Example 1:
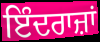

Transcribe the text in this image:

ਇੰਦਰਾਜ਼ਾਂ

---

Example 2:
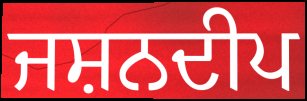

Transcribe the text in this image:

ਜਸ਼ਨਦੀਪ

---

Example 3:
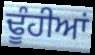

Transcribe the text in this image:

ਢੂੰਹੀਆਂ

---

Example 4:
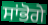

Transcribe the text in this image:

ਸਾਂਭੋਗੇ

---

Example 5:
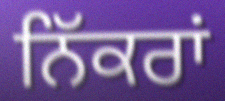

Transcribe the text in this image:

ਨਿੱਕਰਾਂ